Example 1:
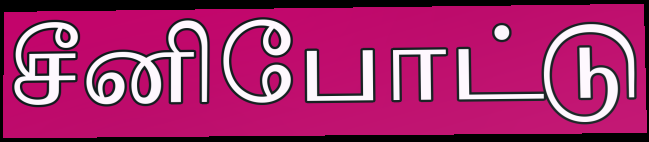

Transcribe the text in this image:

சீனிபோட்டு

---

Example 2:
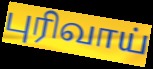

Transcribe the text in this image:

புரிவாய்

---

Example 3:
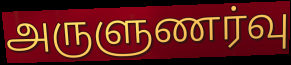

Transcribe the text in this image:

அருளுணர்வு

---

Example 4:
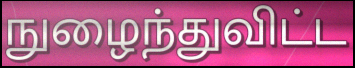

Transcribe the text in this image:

நுழைந்துவிட்ட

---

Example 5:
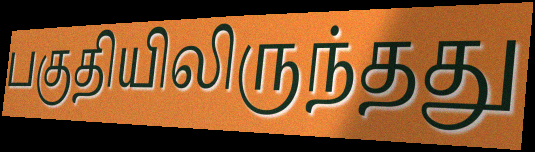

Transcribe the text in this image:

பகுதியிலிருந்தது